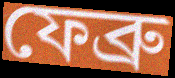
ফেব্রু